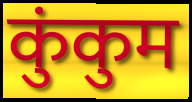
कुंकुम